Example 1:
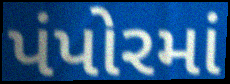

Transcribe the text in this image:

પંપોરમાં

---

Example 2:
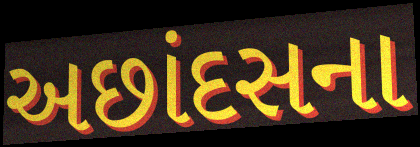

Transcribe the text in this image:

અછાંદસના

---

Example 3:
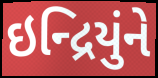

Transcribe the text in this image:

ઇન્દ્રિયુંને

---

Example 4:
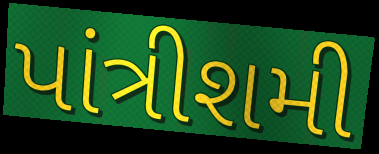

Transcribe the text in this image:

પાંત્રીશમી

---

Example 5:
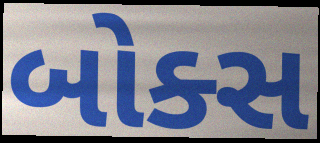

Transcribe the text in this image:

બોક્સ